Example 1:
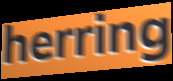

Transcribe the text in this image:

herring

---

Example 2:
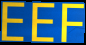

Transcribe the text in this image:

EEF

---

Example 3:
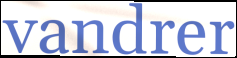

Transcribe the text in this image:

vandrer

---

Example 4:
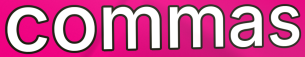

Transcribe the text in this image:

commas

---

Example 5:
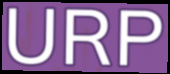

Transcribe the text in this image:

URP